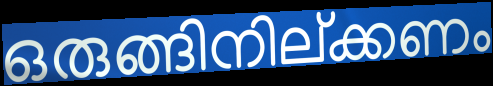
ഒരുങ്ങിനില്ക്കണം